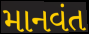
માનવંત